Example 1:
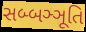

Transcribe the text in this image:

સબ્બઞ્ઞૂતિ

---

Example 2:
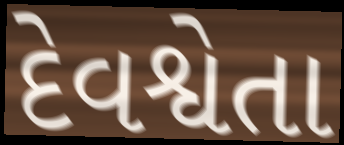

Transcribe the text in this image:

દેવશ્વેતા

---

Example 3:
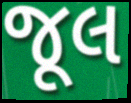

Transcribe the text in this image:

જૂલ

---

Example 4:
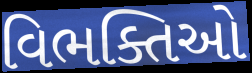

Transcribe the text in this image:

વિભક્તિઓ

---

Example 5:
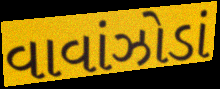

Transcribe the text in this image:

વાવાંઝોડાં